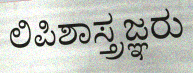
ಲಿಪಿಶಾಸ್ತ್ರಜ್ಞರು